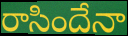
రాసిందేనా